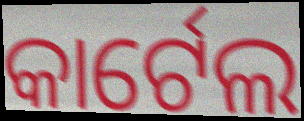
କାର୍ଟେଲ